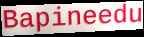
Bapineedu